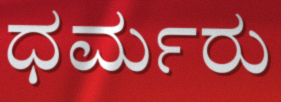
ಧರ್ಮರು